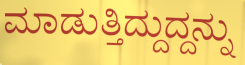
ಮಾಡುತ್ತಿದ್ದುದ್ದನ್ನು